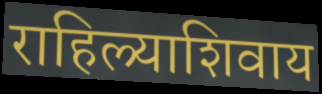
राहिल्याशिवाय